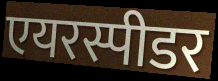
एयरस्पीडर